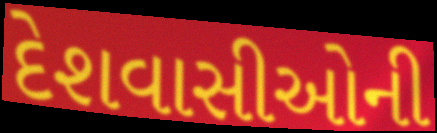
દેશવાસીઓની